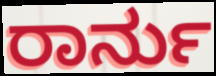
ರಾರ್ನು